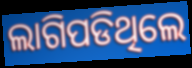
ଲାଗିପଡିଥିଲେ